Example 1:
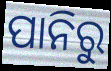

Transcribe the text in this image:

ପାନିରୁ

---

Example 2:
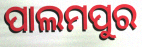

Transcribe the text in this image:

ପାଲମପୁର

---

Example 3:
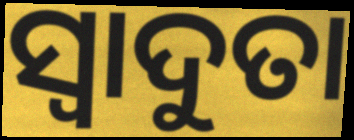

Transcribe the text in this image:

ସ୍ୱାଦୁତା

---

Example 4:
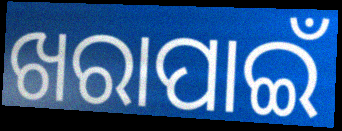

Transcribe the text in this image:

ଖରାପାଇଁ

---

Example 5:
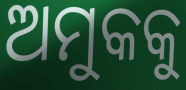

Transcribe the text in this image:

ଅମୁକକୁ